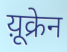
य़ूक्रेन